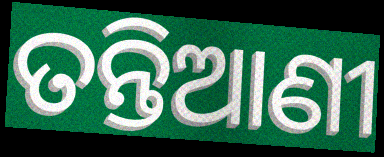
ତନ୍ତିଆଣୀ